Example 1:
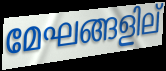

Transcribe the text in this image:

മേഘങ്ങളില്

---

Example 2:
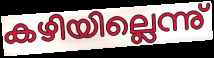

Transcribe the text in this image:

കഴിയില്ലെന്നു്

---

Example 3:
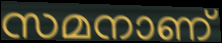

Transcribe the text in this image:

സമനാണ്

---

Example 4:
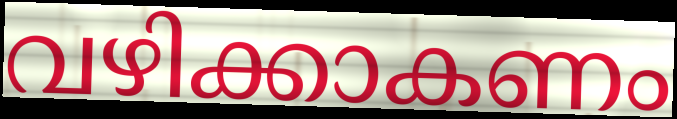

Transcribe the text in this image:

വഴിക്കാകണം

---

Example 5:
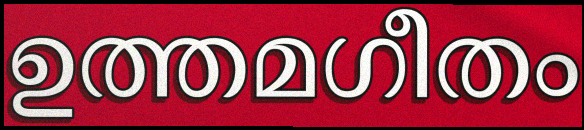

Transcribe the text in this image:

ഉത്തമഗീതം